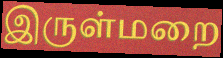
இருள்மறை